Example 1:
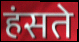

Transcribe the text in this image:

हंसते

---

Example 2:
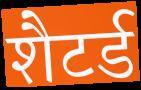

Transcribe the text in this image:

शैटर्ड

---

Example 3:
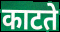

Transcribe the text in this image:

काटते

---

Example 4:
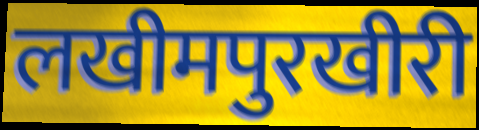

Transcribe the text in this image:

लखीमपुरखीरी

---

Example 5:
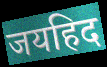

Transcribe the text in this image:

जयहिद